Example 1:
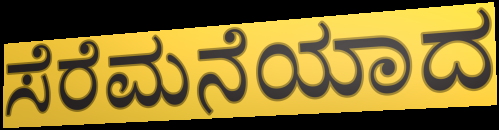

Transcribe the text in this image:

ಸೆರೆಮನೆಯಾದ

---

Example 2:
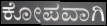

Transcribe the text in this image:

ಕೋಪವಾಗಿ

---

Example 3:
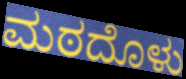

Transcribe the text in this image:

ಮಠದೊಳು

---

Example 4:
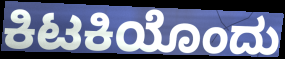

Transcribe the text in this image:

ಕಿಟಕಿಯೊಂದು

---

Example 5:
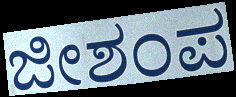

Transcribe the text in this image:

ಜೀಶಂಪ